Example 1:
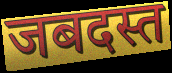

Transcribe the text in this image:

जबदस्त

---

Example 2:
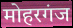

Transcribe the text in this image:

मोहरगंज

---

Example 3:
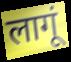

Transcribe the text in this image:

लागूं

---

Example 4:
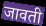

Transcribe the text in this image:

जावती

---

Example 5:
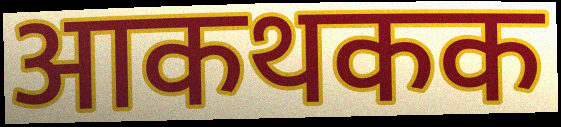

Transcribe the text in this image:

आकथकक